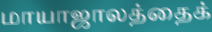
மாயாஜாலத்தைக்